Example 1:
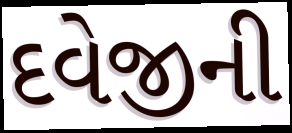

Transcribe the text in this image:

દવેજીની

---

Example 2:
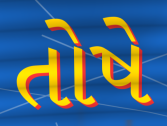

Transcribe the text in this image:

તોષે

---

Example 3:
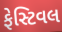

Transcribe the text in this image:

ફેસ્ટિવલ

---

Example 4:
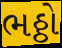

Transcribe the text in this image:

ભઠ્ઠો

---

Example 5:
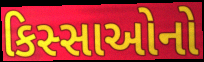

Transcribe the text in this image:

કિસ્સાઓનો